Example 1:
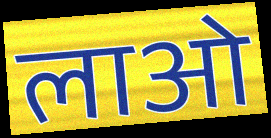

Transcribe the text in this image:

लाओ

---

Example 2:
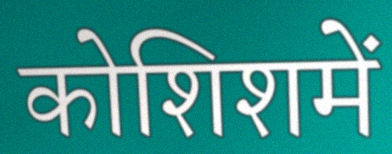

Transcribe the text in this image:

कोशिशमें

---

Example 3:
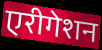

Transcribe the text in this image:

एरीगेशन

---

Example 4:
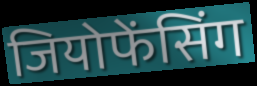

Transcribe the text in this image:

जियोफेंसिंग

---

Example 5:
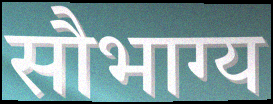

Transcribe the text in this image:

सौभाग्य